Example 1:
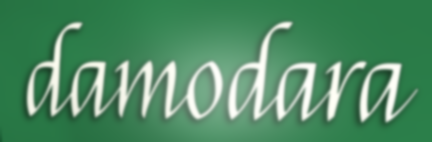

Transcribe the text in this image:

damodara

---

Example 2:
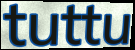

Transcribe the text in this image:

tuttu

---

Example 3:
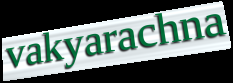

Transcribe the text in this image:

vakyarachna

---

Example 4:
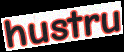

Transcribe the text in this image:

hustru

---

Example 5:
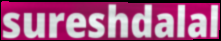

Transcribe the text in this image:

sureshdalal